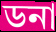
ডনা